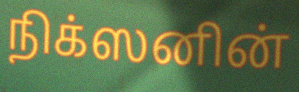
நிக்ஸனின்